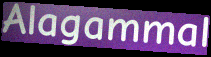
Alagammal